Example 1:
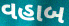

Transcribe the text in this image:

વહાબ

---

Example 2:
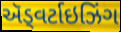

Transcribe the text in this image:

ઍડ્વર્ટાઇઝિંગ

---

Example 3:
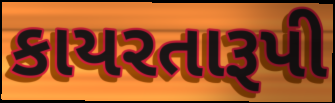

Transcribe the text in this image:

કાયરતારૂપી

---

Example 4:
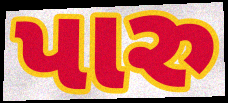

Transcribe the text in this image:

પારુ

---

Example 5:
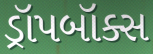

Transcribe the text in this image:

ડ્રૉપબૉક્સ